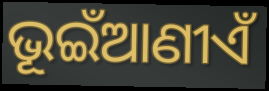
ଭୂଇଁଆଣୀଏଁ